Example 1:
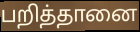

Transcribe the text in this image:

பறித்தானை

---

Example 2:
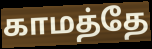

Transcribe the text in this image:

காமத்தே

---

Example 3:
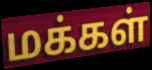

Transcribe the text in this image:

மக்கள்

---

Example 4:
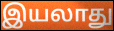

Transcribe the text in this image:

இயலாது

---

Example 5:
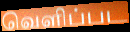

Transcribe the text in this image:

வெளிப்பட